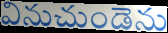
వినుచుండెను